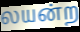
லயன்ற